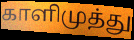
காளிமுத்து